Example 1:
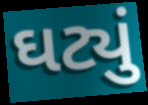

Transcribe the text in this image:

ઘટ્યું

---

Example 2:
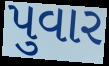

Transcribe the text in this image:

પુવાર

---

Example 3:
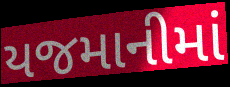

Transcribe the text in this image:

યજમાનીમાં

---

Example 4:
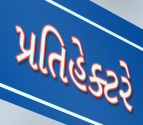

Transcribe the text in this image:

પ્રતિહેક્ટરે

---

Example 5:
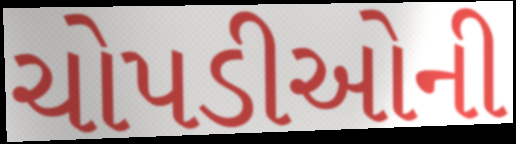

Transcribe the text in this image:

ચોપડીઓની